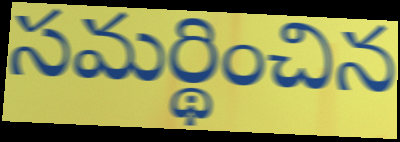
సమర్థించిన